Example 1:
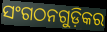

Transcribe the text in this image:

ସଂଗଠନଗୁଡ଼ିକର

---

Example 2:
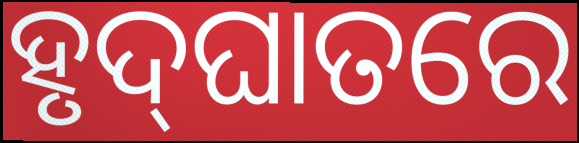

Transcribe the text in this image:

ହୃଦ୍‌ଘାତରେ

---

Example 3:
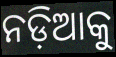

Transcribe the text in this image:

ନଡ଼ିଆକୁ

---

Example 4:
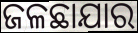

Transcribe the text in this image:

ଜଳଛାଯାର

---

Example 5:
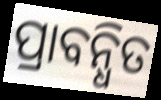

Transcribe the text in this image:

ପ୍ରାବନ୍ଧିତ